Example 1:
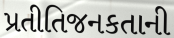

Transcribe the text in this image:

પ્રતીતિજનકતાની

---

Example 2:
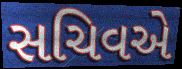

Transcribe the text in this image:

સચિવએ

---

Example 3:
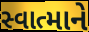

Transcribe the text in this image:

સ્વાત્માને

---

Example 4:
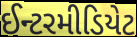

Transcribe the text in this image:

ઈન્ટરમીડિયેટ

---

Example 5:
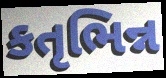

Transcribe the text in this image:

કતૃભિન્ન